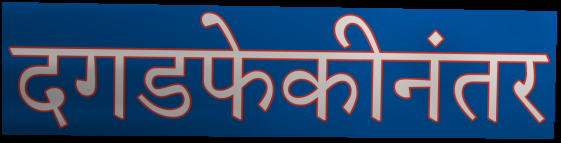
दगडफेकीनंतर